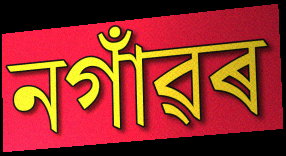
নগাঁৱৰ